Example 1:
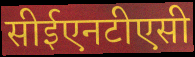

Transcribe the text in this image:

सीईएनटीएसी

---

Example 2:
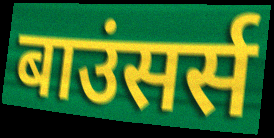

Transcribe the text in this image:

बाउंसर्स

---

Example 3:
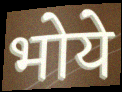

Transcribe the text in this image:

भोये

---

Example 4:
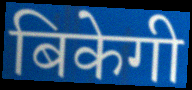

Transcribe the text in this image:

बिकेगी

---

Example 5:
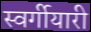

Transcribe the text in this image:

स्वर्गीयारी